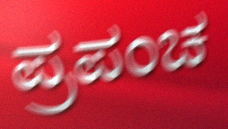
ಪ್ರಪಂಚ